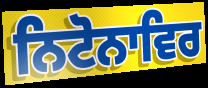
ਨਿਟੋਨਾਵਿਰ